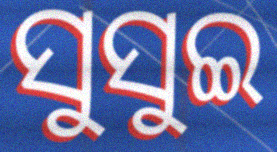
ସୁସୁଇ